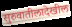
सुरुवातीलादेखील